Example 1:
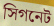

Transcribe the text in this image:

সিগনেট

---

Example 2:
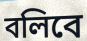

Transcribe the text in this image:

বলিবে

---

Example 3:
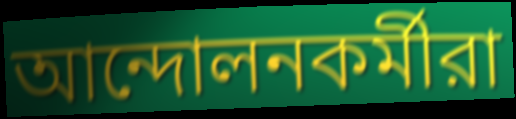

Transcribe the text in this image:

আন্দোলনকর্মীরা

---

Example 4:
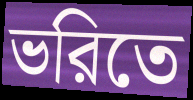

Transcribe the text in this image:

ভরিতে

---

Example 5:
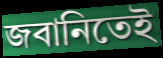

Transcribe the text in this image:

জবানিতেই